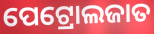
ପେଟ୍ରୋଲଜାତ